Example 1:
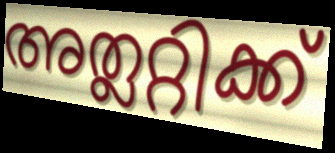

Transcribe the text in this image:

അത്ലറ്റിക്ക്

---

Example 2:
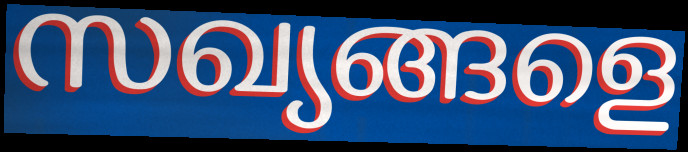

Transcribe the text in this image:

സഖ്യങ്ങളെ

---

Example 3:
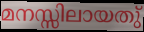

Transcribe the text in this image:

മനസ്സിലായതു്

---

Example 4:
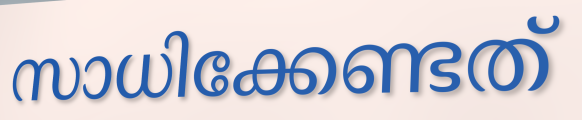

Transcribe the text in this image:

സാധിക്കേണ്ടത്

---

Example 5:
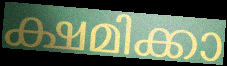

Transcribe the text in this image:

ക്ഷമിക്കാ